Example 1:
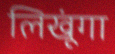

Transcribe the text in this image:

लिखूंगा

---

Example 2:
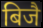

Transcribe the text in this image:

बिजै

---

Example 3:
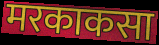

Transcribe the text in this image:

मरकाकसा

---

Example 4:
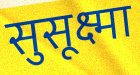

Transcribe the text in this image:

सुसूक्ष्मा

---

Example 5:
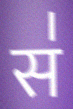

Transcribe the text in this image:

स॑